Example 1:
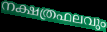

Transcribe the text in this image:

നക്ഷത്രഫലവും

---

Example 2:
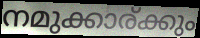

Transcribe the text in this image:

നമുക്കാര്ക്കും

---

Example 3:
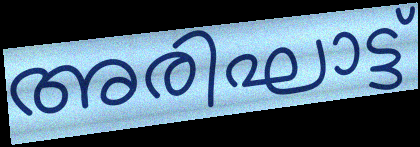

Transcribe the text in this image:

അരിഘാട്ട്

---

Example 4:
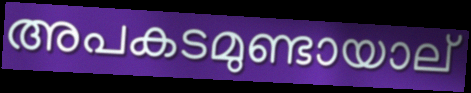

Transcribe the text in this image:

അപകടമുണ്ടായാല്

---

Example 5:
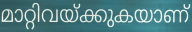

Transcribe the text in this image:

മാറ്റിവയ്ക്കുകയാണ്